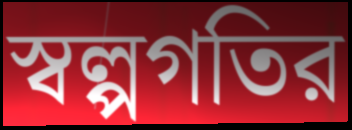
স্বল্পগতির